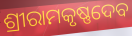
ଶ୍ରୀରାମକୃଷ୍ଣଦେବ